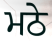
ਮਠੇ